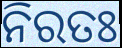
ନିରତଃ